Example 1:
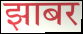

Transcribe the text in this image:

झाबर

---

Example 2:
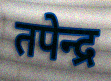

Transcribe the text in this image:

तपेन्द्र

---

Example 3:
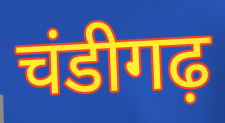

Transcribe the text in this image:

चंडीगढ़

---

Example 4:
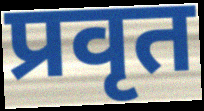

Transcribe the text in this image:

प्रवृत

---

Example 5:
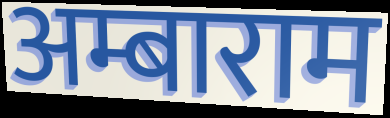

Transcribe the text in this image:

अम्बाराम